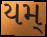
યમ્